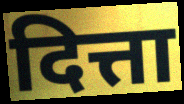
दित्ता